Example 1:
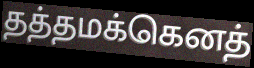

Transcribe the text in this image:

தத்தமக்கெனத்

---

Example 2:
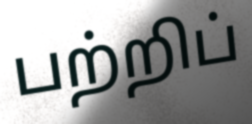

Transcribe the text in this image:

பற்றிப்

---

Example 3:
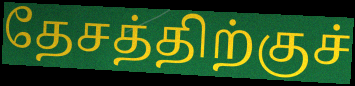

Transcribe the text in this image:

தேசத்திற்குச்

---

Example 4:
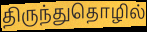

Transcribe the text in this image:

திருந்துதொழில்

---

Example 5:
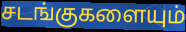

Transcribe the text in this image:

சடங்குகளையும்